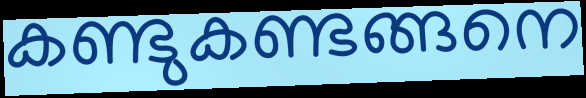
കണ്ടുകണ്ടങ്ങനെ